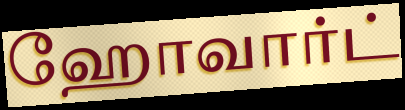
ஹோவார்ட்